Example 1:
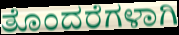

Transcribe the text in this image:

ತೊಂದರೆಗಳಾಗಿ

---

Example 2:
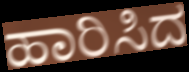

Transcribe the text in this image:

ಹಾರಿಸಿದ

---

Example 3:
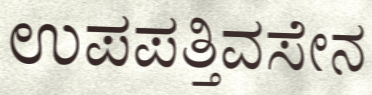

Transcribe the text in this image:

ಉಪಪತ್ತಿವಸೇನ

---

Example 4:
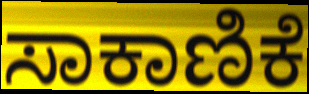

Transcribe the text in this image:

ಸಾಕಾಣಿಕೆ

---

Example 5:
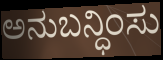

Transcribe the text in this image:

ಅನುಬನ್ಧಿಂಸು